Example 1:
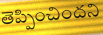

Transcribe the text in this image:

తెప్పించిందని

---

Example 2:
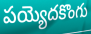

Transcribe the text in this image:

పయ్యెదకొంగు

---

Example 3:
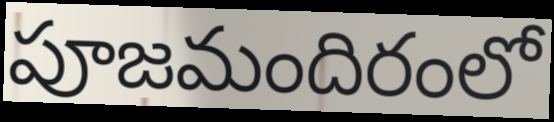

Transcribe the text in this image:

పూజమందిరంలో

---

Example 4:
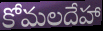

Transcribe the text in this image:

కోమలదేహా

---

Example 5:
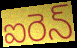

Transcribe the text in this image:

ఐరెన్